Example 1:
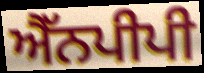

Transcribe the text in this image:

ਐੱਨਪੀਪੀ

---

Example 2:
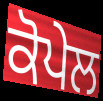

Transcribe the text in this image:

ਕੋਪੇਲ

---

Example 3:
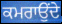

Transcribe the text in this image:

ਕਮਰਾਉਂਦੇ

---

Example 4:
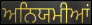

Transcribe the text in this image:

ਅਨਿਯਮੀਆਂ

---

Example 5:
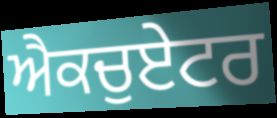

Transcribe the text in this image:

ਐਕਚੁਏਟਰ